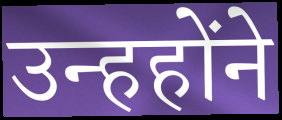
उन्हहोंने